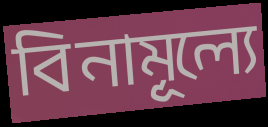
বিনামূল্যে